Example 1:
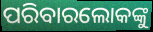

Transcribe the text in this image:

ପରିବାରଲୋକଙ୍କୁ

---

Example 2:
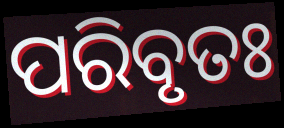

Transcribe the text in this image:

ପରିବୃତଃ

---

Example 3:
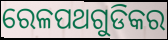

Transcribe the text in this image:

ରେଳପଥଗୁଡିକର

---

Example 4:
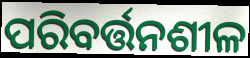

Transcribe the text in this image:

ପରିବର୍ତ୍ତନଶୀଳ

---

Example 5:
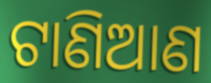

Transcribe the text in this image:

ଟାଣିଆଣ